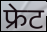
फ्रेट